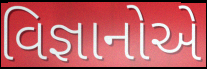
વિજ્ઞાનોએ